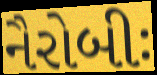
નૈરોબીઃ